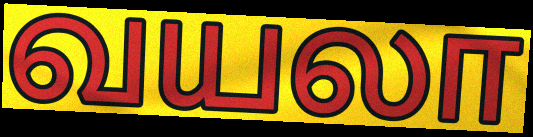
வயலா